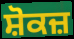
ਸ਼ੋਕਜ਼